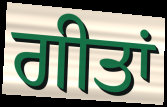
ਗੀਤਾਂ